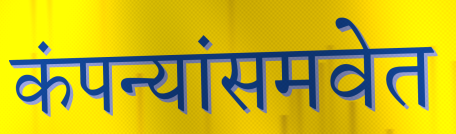
कंपन्यांसमवेत